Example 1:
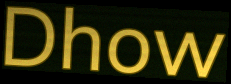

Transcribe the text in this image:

Dhow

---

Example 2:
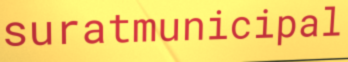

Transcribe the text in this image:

suratmunicipal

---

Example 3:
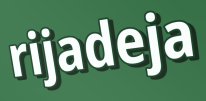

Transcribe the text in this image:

rijadeja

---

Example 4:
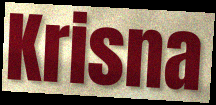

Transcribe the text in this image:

Krisna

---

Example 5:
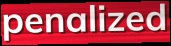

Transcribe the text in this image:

penalized